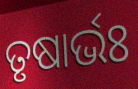
ତୃଷାର୍ଭଃ